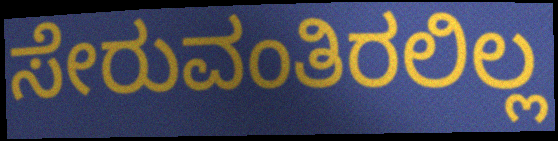
ಸೇರುವಂತಿರಲಿಲ್ಲ